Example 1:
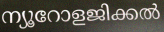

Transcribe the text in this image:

ന്യൂറോളജിക്കൽ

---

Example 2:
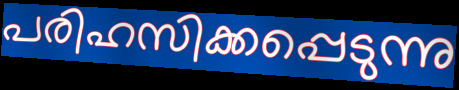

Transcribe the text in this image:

പരിഹസിക്കപ്പെടുന്നു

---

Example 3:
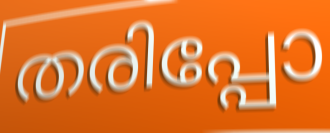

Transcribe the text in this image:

തരിപ്പോ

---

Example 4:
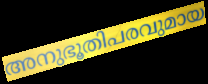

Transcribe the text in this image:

അനുഭൂതിപരവുമായ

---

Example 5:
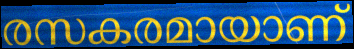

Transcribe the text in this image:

രസകരമായാണ്